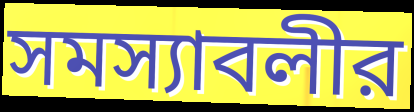
সমস্যাবলীর